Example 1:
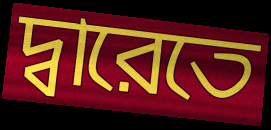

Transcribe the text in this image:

দ্বারেতে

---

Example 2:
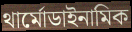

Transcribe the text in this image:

থার্মোডাইনামিক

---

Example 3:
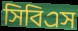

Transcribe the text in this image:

সিবিএস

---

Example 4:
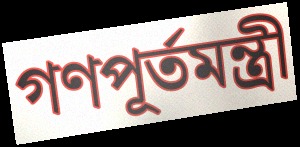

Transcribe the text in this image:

গণপূর্তমন্ত্রী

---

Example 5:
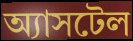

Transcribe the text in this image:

অ্যাসটেল